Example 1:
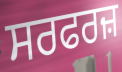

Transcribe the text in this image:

ਸਰਫਰਜ਼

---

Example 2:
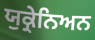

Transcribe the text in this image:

ਯੁਕ੍ਰੇਨਿਅਨ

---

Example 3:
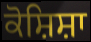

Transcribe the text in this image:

ਕੋਸ਼ਿਸ਼ਾ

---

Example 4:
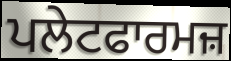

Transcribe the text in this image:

ਪਲੇਟਫਾਰਮਜ਼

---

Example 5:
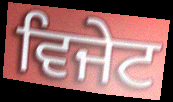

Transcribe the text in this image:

ਵਿਜੇਟ